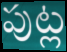
పుట్ల